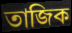
তাজিক